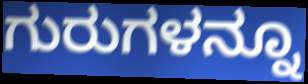
ಗುರುಗಳನ್ನೂ